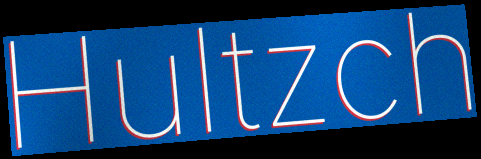
Hultzch